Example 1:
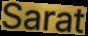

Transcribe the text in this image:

Sarat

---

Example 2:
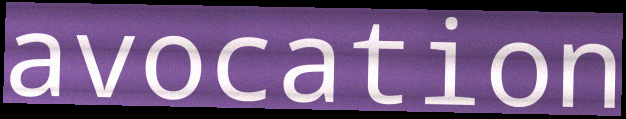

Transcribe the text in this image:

avocation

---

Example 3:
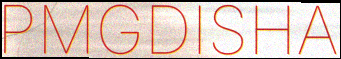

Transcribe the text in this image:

PMGDISHA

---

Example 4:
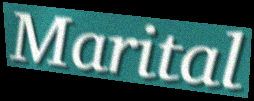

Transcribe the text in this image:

Marital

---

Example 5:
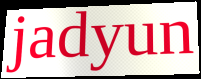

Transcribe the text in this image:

jadyun